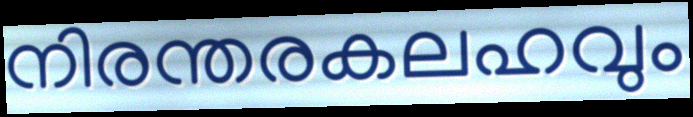
നിരന്തരകലഹവും